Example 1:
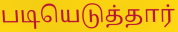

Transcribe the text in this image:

படியெடுத்தார்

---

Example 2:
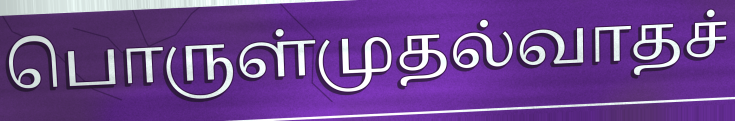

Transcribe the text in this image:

பொருள்முதல்வாதச்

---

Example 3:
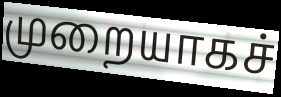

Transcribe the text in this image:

முறையாகச்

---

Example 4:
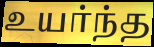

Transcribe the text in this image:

உயர்ந்த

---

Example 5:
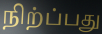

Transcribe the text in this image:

நிற்ப்பது